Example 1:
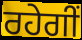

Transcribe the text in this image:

ਰਹੇਗੀਂ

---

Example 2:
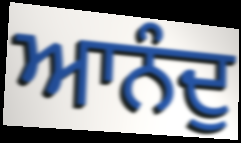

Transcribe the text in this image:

ਆਨੰਦੁ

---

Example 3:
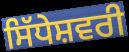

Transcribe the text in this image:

ਸਿੱਧੇਸ਼ਵਰੀ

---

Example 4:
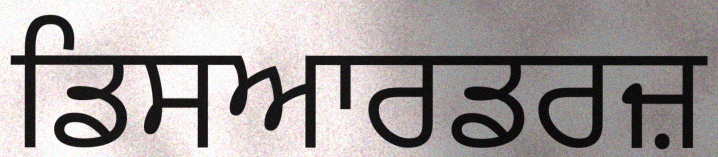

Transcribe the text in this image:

ਡਿਸਆਰਡਰਜ਼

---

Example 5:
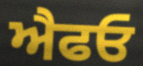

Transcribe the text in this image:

ਐਫਓ